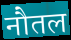
नौतल